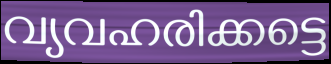
വ്യവഹരിക്കട്ടെ